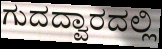
ಗುದದ್ವಾರದಲ್ಲಿ